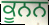
ਕੂਨਨ